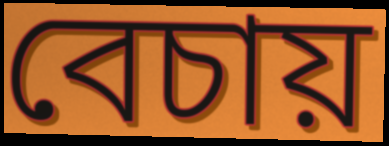
বেচায়